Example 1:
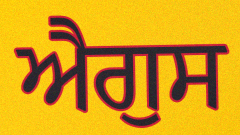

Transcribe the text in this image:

ਐਗੁਸ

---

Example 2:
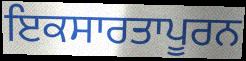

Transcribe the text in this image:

ਇਕਸਾਰਤਾਪੂਰਨ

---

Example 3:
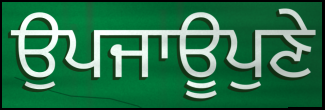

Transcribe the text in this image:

ਉਪਜਾਊਪੁਣੇ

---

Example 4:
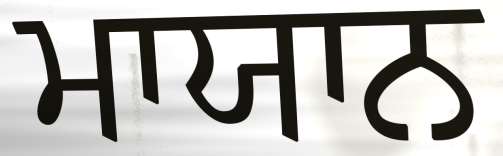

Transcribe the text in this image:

ਮਾਯਾਨ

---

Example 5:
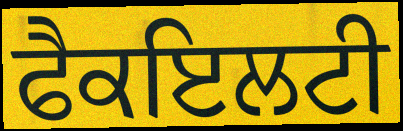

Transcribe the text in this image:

ਫੈਕਇਲਟੀ